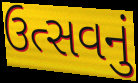
ઉત્સવનું